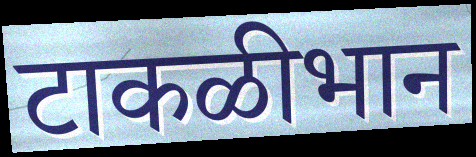
टाकळीभान